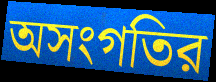
অসংগতির